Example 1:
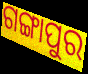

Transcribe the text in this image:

ଗଙ୍ଗାପୁର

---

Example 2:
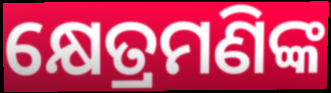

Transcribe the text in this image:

କ୍ଷେତ୍ରମଣିଙ୍କ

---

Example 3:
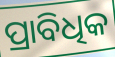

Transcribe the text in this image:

ପ୍ରାବିଧିକ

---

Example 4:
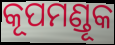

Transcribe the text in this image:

କୂପମଣ୍ଡୂକ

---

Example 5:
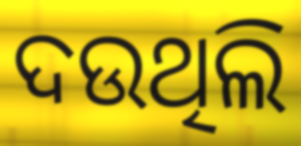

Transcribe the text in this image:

ଦଉଥିଲି